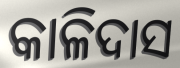
କାଳିଦାସ